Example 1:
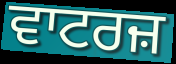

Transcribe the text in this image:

ਵਾਟਰਜ਼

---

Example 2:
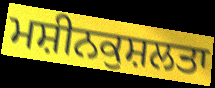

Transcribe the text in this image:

ਮਸ਼ੀਨਕੁਸ਼ਲਤਾ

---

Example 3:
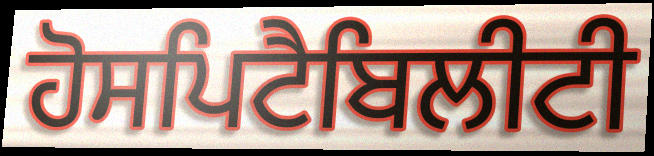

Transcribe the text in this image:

ਹੋਸਪਿਟੈਬਿਲੀਟੀ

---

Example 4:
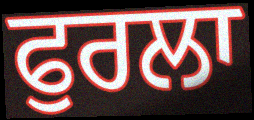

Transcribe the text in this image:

ਫੁਰਲਾ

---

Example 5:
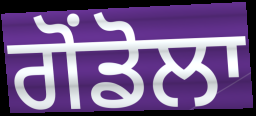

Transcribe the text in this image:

ਗੋਂਡੋਲਾ